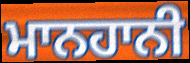
ਮਾਨਹਾਨੀ